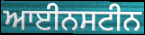
ਆਈਨਸਟੀਨ